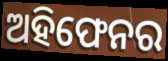
ଅହିଫେନର